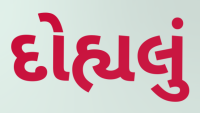
દોહ્યલું